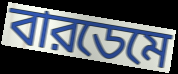
বারডেমে